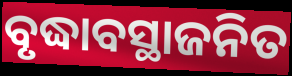
ବୃଦ୍ଧାବସ୍ଥାଜନିତ